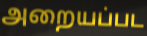
அறையப்பட